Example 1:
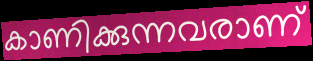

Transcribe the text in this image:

കാണിക്കുന്നവരാണ്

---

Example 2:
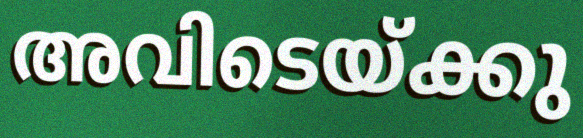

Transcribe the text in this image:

അവിടെയ്ക്കു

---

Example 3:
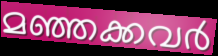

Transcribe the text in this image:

മഞ്ഞക്കവർ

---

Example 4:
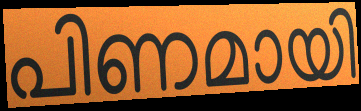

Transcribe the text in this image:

പിണമായി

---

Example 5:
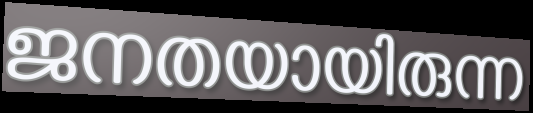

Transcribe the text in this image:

ജനതയായിരുന്ന